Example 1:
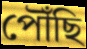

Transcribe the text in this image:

পৌঁছি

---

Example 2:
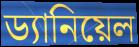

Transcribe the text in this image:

ড্যানিয়েল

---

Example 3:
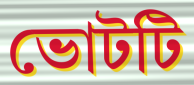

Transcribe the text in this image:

ভোটটি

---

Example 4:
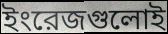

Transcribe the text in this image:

ইংরেজগুলোই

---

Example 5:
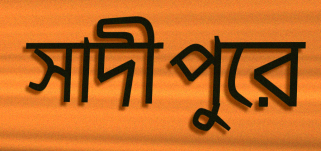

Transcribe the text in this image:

সাদীপুরে